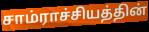
சாம்ராச்சியத்தின்